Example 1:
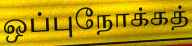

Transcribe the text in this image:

ஒப்புநோக்கத்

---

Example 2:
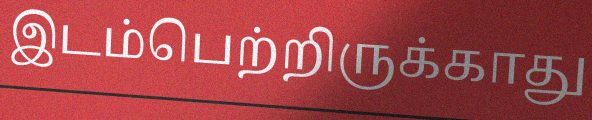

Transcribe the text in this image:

இடம்பெற்றிருக்காது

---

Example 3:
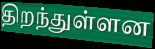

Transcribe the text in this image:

திறந்துள்ளன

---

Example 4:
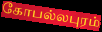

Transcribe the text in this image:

கோபல்லபுரம்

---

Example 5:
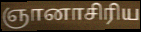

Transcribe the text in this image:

ஞானாசிரிய